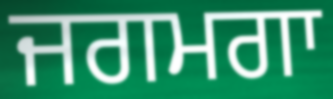
ਜਗਮਗਾ